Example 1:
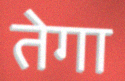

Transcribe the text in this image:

तेगा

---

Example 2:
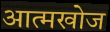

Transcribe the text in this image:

आत्मखोज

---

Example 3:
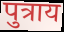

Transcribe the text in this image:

पुत्राय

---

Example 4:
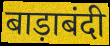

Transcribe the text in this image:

बाड़ाबंदी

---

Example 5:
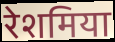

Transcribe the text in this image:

रेशमिया